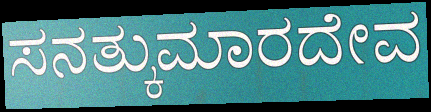
ಸನತ್ಕುಮಾರದೇವ